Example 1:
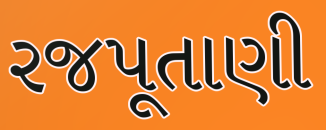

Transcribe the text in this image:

રજપૂતાણી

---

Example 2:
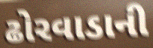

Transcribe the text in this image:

ઢોરવાડાની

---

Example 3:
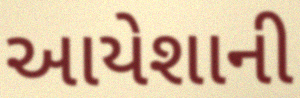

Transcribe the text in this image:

આયેશાની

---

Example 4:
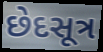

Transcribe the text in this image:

છેદસૂત્ર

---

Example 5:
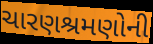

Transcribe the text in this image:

ચારણશ્રમણોની